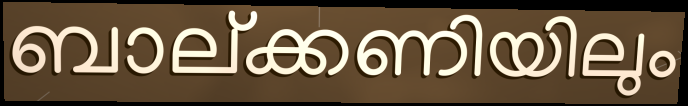
ബാല്ക്കണിയിലും